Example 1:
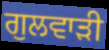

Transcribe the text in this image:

ਗੁਲਵਾੜੀ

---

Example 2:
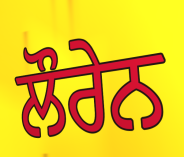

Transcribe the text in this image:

ਲੌਰੇਨ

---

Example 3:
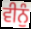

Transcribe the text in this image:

ਵੀਨੁੰ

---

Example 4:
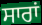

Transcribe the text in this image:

ਸਾਰਾਂ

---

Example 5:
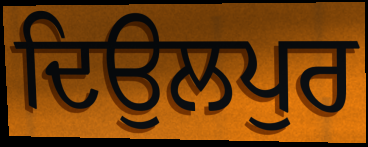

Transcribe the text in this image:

ਦਿਉਲਪੁਰ